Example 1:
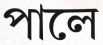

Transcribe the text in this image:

পালে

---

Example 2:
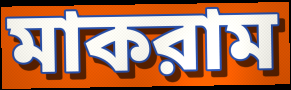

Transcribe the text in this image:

মাকরাম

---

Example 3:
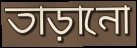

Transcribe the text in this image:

তাড়ানো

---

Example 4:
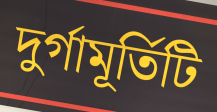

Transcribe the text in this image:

দুর্গামূর্তিটি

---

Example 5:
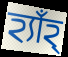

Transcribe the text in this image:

হ্যাঁহ্